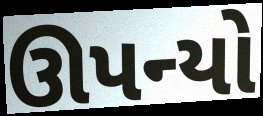
ઊપન્યો